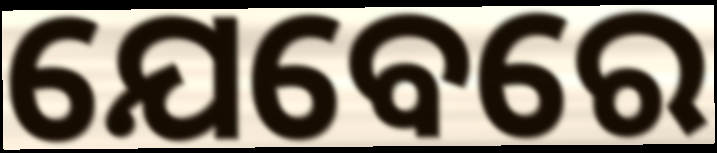
ଯେବେରେ